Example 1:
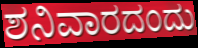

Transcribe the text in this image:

ಶನಿವಾರದಂದು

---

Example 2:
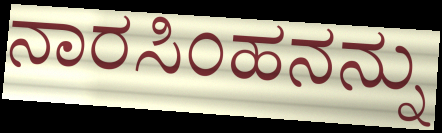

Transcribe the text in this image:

ನಾರಸಿಂಹನನ್ನು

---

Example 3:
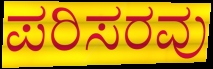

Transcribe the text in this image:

ಪರಿಸರವು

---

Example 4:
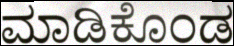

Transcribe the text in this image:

ಮಾಡಿಕೊಂಡ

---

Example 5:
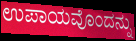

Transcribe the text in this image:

ಉಪಾಯವೊಂದನ್ನು